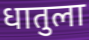
धातुला